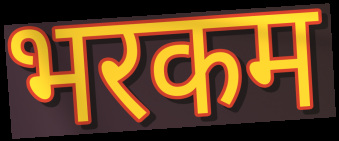
भरकम